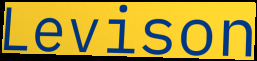
Levison